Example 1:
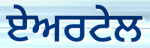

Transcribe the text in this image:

ਏਅਰਟੇਲ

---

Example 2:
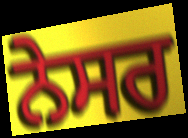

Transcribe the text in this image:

ਨੇਸਰ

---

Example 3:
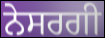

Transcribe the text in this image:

ਨੇਸਰਗੀ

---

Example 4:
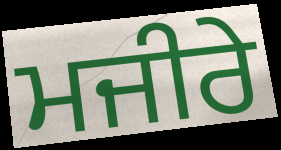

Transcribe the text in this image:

ਮਜੀਰੇ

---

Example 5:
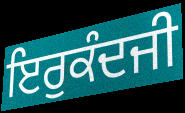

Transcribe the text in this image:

ਇਰੁਕੰਦਜੀ